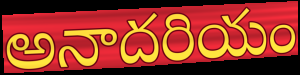
అనాదరియం